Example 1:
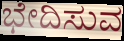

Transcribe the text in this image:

ಭೇದಿಸುವ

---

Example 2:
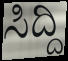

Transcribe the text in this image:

ಸಿದ್ದಿ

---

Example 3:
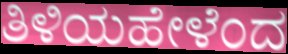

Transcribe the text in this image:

ತಿಳಿಯಹೇಳೆಂದ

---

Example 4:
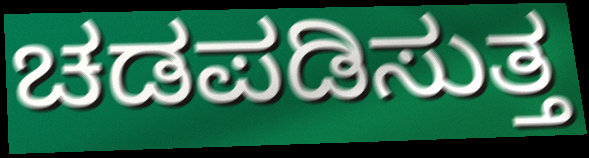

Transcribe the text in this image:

ಚಡಪಡಿಸುತ್ತ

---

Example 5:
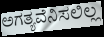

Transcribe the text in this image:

ಅಗತ್ಯವೆನಿಸಲಿಲ್ಲ